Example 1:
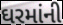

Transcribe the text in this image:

ઘરમાંની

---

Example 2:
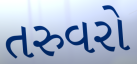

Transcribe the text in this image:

તરુવરો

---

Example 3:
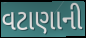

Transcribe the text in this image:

વટાણાની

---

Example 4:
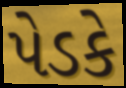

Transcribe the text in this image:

પેડકે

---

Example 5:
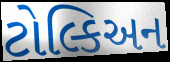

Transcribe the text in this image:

ટોલ્કિઅન